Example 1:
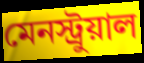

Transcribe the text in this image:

মেনস্ট্রুয়াল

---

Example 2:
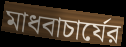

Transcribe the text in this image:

মাধবাচার্যের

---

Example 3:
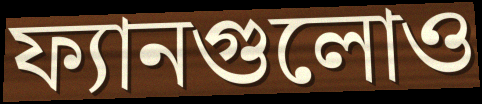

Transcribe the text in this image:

ফ্যানগুলোও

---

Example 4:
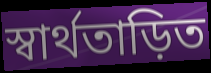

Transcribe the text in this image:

স্বার্থতাড়িত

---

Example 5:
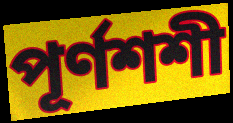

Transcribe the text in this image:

পূর্ণশশী